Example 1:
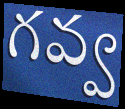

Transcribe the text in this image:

గవ్వ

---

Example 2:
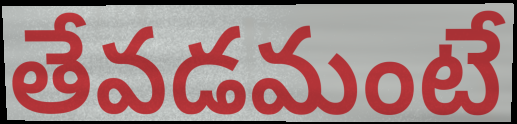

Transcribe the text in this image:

తేవడమంటే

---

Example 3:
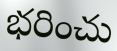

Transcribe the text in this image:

భరించు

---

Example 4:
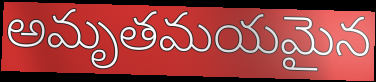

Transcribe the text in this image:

అమృతమయమైన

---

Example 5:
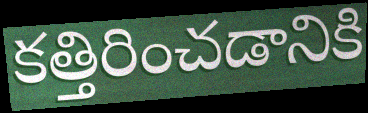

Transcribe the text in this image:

కత్తిరించడానికి